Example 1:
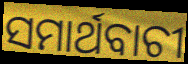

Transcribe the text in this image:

ସମାର୍ଥବାଚୀ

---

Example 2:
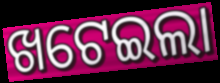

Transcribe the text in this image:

ଖଟେଇଲା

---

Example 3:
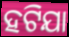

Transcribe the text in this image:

ହଟିଯା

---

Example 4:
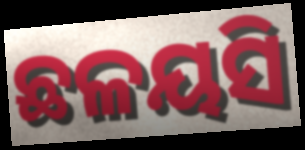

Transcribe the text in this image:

ଛଳୟସି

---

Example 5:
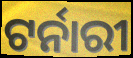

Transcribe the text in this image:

ଟର୍ନାରୀ